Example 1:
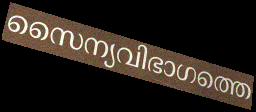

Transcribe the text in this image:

സൈന്യവിഭാഗത്തെ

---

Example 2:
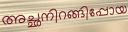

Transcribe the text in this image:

അച്ഛനിറങ്ങിപ്പോയ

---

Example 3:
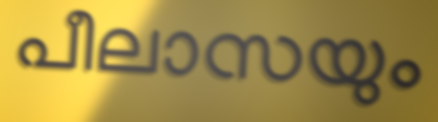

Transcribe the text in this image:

പീലാസയും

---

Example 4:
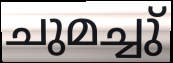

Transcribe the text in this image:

ചുമച്ചു്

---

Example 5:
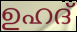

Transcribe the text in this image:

ഉഹദ്